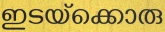
ഇടയ്‌ക്കൊരു